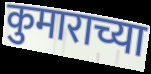
कुमाराच्या